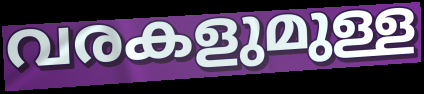
വരകളുമുള്ള